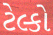
ટેલ્કો